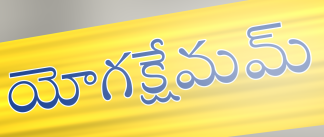
యోగక్షేమమ్